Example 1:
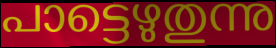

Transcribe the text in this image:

പാട്ടെഴുതുന്നു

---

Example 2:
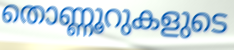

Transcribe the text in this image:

തൊണ്ണൂറുകളുടെ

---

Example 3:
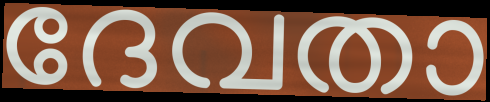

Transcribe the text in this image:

ദേവതാ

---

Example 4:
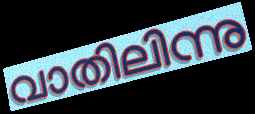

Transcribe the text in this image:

വാതിലിന്നു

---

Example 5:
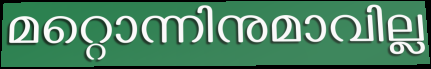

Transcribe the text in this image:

മറ്റൊന്നിനുമാവില്ല